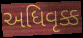
અધિવૃક્ક